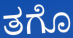
ತಗೊ